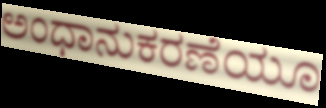
ಅಂಧಾನುಕರಣೆಯೂ